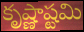
కృష్ణాష్టమి